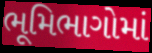
ભૂમિભાગોમાં